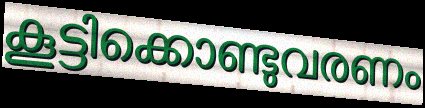
കൂട്ടിക്കൊണ്ടുവരണം